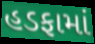
હડફામાં